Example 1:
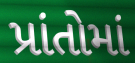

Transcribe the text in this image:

પ્રાંતોમાં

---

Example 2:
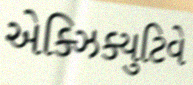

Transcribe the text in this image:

એક્ઝિક્યુટિવે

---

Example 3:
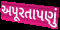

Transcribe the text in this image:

અપૂરતાપણું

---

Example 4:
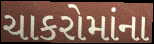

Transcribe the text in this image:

ચાકરોમાંના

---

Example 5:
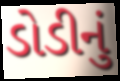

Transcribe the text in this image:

ડોડીનું